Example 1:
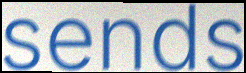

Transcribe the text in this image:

sends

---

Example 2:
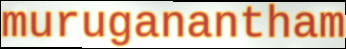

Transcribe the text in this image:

muruganantham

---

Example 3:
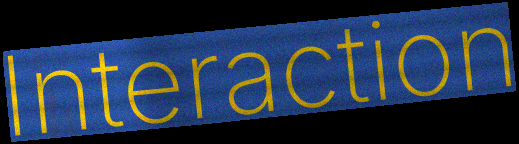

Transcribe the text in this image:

Interaction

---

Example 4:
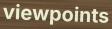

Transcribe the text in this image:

viewpoints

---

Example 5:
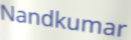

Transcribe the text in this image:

Nandkumar